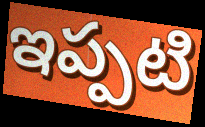
ఇప్పటి